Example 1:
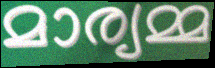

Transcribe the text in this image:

മാര്യമ്മ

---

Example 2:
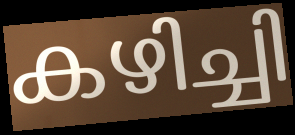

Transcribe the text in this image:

കഴിച്ചി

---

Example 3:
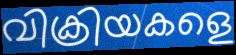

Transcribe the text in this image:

വിക്രിയകളെ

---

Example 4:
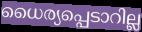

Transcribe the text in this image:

ധൈര്യപ്പെടാറില്ല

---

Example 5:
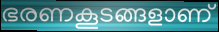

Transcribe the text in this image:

ഭരണകൂടങ്ങളാണ്